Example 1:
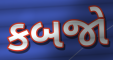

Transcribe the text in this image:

કબજો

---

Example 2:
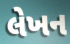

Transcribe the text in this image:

લેખન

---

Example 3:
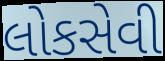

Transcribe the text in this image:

લોકસેવી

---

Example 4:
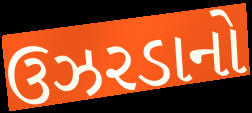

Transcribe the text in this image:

ઉઝરડાનો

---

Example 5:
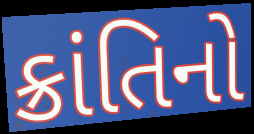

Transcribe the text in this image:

ક્રાંતિનો